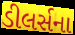
ડીલર્સના